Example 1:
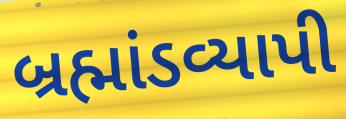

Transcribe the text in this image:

બ્રહ્માંડવ્યાપી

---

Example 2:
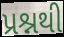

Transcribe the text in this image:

પ્રશ્નથી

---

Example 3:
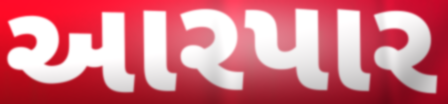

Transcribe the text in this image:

આરપાર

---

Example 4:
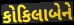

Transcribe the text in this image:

કોકિલાબેને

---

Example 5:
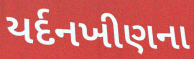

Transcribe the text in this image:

યર્દનખીણના